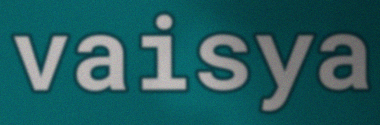
vaisya